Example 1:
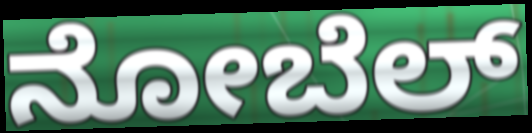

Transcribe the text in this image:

ನೋಬೆಲ್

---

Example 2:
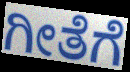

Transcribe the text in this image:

ಗೀತೆಗೆ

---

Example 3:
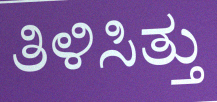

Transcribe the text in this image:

ತಿಳಿಸಿತ್ತು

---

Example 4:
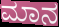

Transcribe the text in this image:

ಮಾನ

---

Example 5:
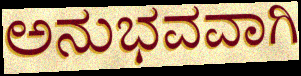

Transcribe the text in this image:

ಅನುಭವವಾಗಿ